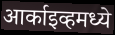
आर्काइव्हमध्ये